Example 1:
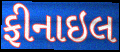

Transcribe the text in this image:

ફીનાઇલ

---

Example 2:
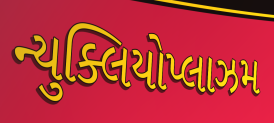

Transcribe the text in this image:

ન્યુક્લિયોપ્લાઝમ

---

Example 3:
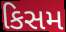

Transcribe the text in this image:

કિસમ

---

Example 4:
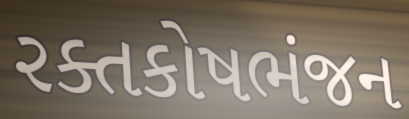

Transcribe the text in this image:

રક્તકોષભંજન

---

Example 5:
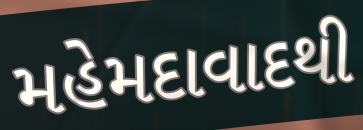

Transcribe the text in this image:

મહેમદાવાદથી